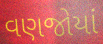
વણજોયાં